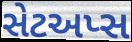
સેટઅપ્સ